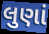
લુણાં